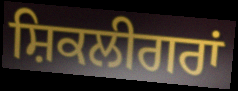
ਸ਼ਿਕਲੀਗਰਾਂ